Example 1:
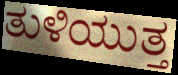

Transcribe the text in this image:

ತುಳಿಯುತ್ತ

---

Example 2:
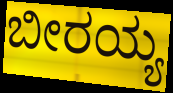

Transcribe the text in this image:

ಬೀರಯ್ಯ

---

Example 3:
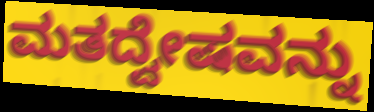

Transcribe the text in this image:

ಮತದ್ವೇಷವನ್ನು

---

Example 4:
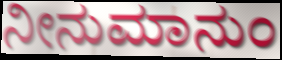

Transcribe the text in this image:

ನೀನುಮಾನುಂ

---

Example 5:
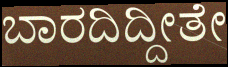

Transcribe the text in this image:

ಬಾರದಿದ್ದೀತೇ